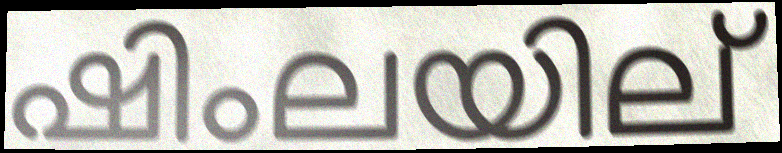
ഷിംലയില്